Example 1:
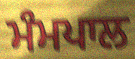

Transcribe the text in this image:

ਮੰਮਪਾਲ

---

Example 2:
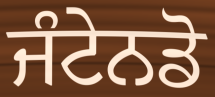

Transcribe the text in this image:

ਜੰਟੇਨਡੋ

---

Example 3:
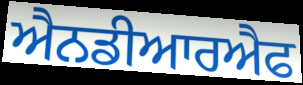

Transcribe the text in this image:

ਐਨਡੀਆਰਐਫ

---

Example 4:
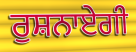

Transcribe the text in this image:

ਰੁਸ਼ਨਾਏਗੀ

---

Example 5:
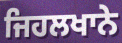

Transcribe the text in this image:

ਜਿਹਲਖਾਨੇ